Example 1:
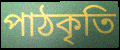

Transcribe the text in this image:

পাঠকৃতি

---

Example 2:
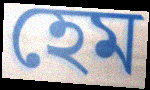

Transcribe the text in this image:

হেম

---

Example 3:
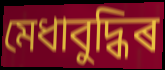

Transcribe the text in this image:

মেধাবুদ্ধিৰ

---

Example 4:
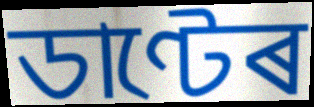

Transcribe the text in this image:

ডাণ্টেৰ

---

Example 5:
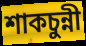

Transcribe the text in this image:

শাকচুন্নী